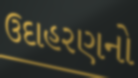
ઉદાહરણનો